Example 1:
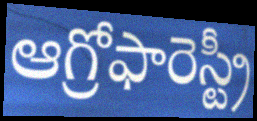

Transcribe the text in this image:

ఆగ్రోఫారెస్ట్రీ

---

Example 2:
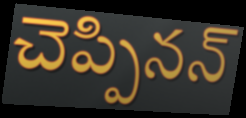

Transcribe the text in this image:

చెప్పినన్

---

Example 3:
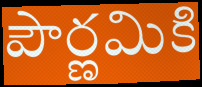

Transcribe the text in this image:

పౌర్ణమికి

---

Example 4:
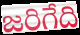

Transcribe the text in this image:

జరిగేది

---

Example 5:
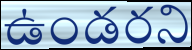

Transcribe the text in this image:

ఉండరని